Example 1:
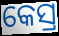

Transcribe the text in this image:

କେସ୍ର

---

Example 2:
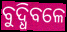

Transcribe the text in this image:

ବୁଦ୍ଧିବଳେ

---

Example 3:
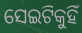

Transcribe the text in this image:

ସେଇଟିକୁହିଁ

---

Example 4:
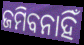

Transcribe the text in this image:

ଜମିବନାହିଁ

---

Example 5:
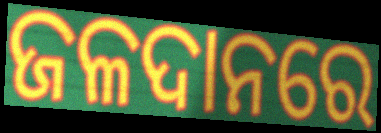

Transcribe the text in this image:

ଜଳଦାନରେ